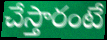
చేస్తారంటే